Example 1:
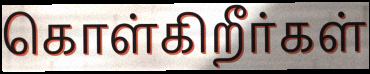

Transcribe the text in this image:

கொள்கிறீர்கள்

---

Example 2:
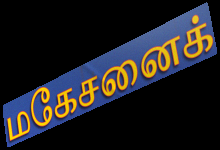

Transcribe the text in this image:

மகேசனைக்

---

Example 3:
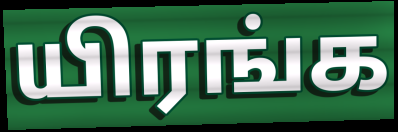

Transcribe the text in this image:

யிரங்க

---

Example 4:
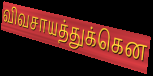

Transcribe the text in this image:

விவசாயத்துக்கென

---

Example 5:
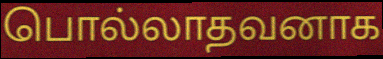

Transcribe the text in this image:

பொல்லாதவனாக